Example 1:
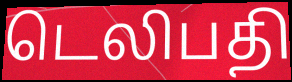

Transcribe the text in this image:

டெலிபதி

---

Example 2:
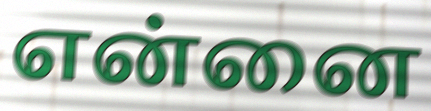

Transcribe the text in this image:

என்னை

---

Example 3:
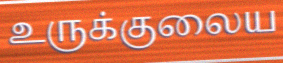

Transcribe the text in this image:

உருக்குலைய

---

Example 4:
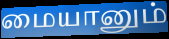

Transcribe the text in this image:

மையானும்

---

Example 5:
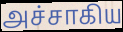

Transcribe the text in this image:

அச்சாகிய